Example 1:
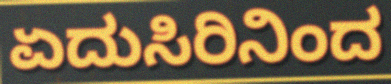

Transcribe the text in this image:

ಏದುಸಿರಿನಿಂದ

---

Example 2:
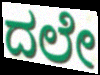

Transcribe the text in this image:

ದಲೇ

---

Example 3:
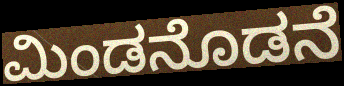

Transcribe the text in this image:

ಮಿಂಡನೊಡನೆ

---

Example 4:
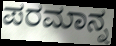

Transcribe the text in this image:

ಪರಮಾನ್ನ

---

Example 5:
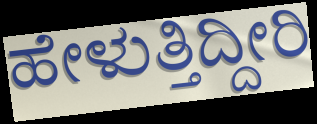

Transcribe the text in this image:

ಹೇಳುತ್ತಿದ್ದೀರಿ